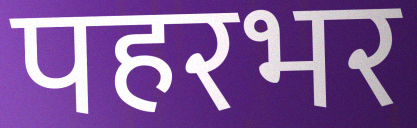
पहरभर